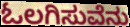
ಓಲಗಿಸುವೆನು